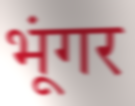
भूंगर